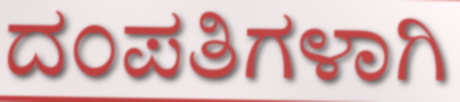
ದಂಪತಿಗಳಾಗಿ